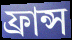
ফ্ৰান্স